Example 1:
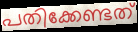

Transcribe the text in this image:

പതിക്കേണ്ടത്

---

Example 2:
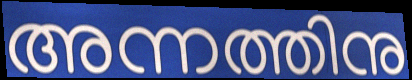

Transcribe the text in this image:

അന്നത്തിനു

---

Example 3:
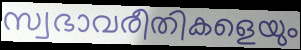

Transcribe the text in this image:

സ്വഭാവരീതികളെയും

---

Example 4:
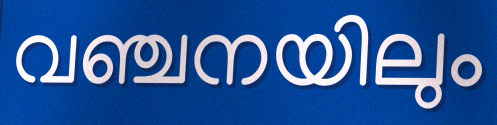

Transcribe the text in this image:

വഞ്ചനയിലും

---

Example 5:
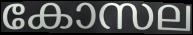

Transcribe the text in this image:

കോസല